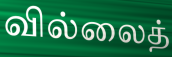
வில்லைத்